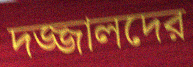
দজ্জালদের